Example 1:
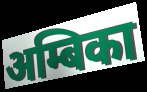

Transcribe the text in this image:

अम्बिका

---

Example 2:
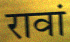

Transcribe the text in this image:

रावां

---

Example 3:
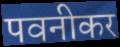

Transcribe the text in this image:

पवनीकर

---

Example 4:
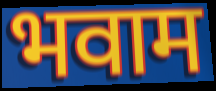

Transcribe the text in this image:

भवाम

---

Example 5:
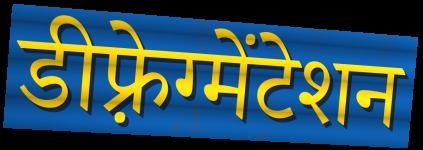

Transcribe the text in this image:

डीफ़्रेग्मेंटेशन